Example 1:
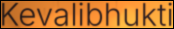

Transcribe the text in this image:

Kevalibhukti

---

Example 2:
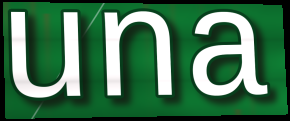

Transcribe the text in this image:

una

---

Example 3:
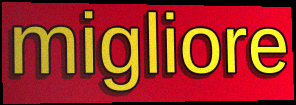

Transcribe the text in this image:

migliore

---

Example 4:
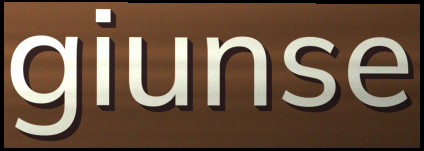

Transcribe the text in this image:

giunse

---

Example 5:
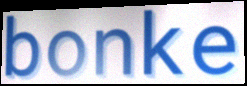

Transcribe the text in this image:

bonke